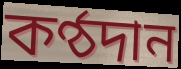
কণ্ঠদান